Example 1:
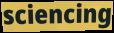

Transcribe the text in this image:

sciencing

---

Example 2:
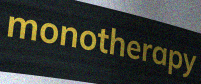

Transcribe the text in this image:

monotherapy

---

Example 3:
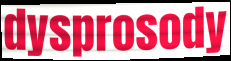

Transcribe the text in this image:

dysprosody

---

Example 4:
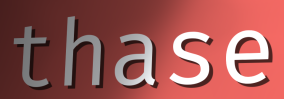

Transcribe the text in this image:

thase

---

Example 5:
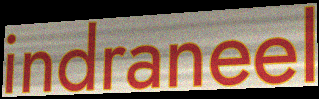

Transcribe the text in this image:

indraneel